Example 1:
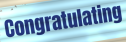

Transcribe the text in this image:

Congratulating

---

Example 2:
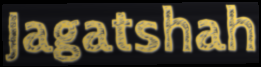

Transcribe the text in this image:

Jagatshah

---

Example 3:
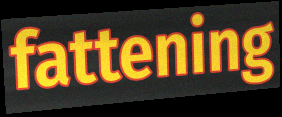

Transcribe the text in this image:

fattening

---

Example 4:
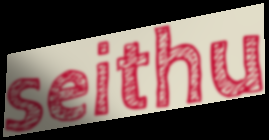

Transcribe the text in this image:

seithu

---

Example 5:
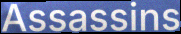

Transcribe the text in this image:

Assassins